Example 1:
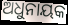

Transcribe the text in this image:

ଅଧୁନାୟକ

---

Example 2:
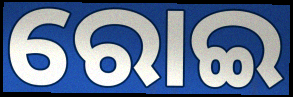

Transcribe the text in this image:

ରୋଇ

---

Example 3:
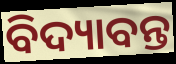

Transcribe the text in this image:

ବିଦ୍ୟାବନ୍ତ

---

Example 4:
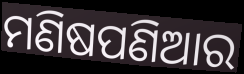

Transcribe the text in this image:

ମଣିଷପଣିଆର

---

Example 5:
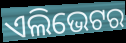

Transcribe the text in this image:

ଏଲିଭେଟର